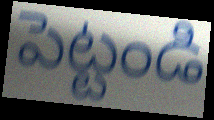
పెట్టండి